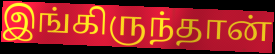
இங்கிருந்தான்